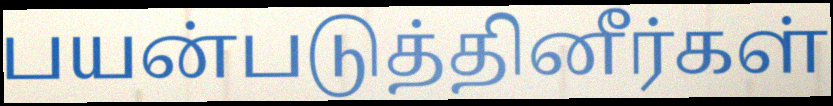
பயன்படுத்தினீர்கள்